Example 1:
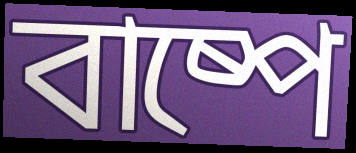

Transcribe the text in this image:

বাষ্পে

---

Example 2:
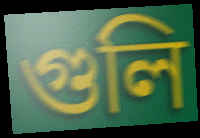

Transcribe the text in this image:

গুলি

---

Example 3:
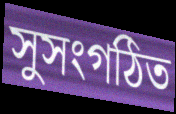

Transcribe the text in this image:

সুসংগঠিত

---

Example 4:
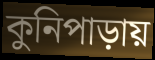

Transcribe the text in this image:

কুনিপাড়ায়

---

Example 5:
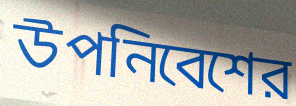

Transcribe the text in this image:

উপনিবেশের